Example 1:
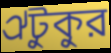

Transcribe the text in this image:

ঐটুকুর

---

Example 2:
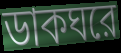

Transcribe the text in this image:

ডাকঘরে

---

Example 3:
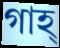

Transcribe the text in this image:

গাহ্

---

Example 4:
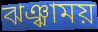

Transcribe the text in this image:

ঝঞ্ঝাময়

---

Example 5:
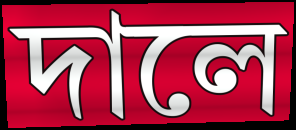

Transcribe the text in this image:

দালে